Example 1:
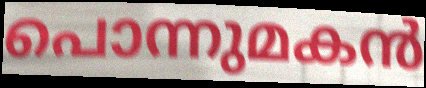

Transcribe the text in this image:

പൊന്നുമകൻ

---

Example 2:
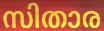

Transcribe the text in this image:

സിതാര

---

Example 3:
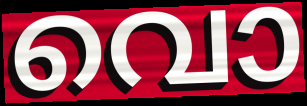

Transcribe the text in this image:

വൊ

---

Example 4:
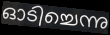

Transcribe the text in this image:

ഓടിച്ചെന്നു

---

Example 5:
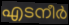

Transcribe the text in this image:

എടനീർ